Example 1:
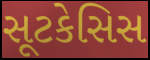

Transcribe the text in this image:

સૂટકેસિસ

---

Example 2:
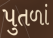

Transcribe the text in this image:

પુતળાં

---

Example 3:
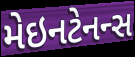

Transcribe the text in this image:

મેઇનટેનન્સ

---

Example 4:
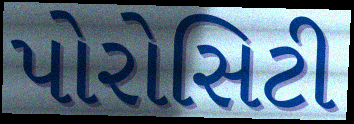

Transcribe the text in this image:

પોરોસિટી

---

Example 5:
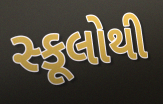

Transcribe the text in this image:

સ્કૂલોથી